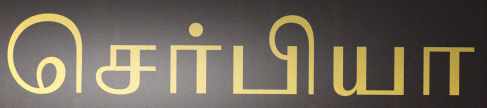
செர்பியா